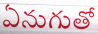
ఏనుగుతో